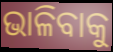
ଭାଳିବାକୁ